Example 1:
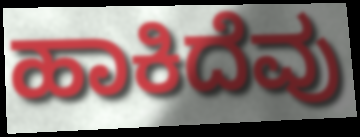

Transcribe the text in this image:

ಹಾಕಿದೆವು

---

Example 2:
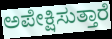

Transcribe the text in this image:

ಅಪೇಕ್ಷಿಸುತ್ತಾರೆ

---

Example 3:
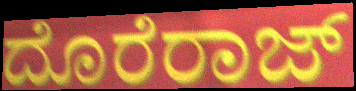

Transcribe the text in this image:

ದೊರೆರಾಜ್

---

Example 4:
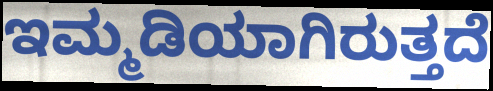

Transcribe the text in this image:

ಇಮ್ಮಡಿಯಾಗಿರುತ್ತದೆ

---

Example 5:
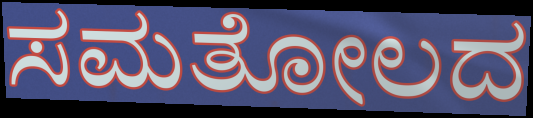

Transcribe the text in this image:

ಸಮತೋಲದ